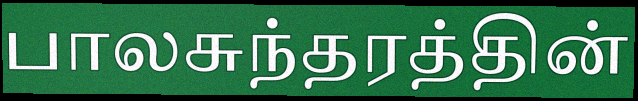
பாலசுந்தரத்தின்